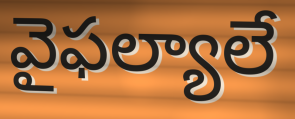
వైఫల్యాలే